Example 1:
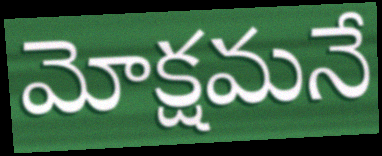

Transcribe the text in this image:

మోక్షమనే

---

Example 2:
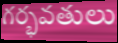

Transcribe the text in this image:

గర్భవతులు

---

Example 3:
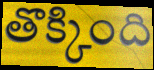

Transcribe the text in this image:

తొక్కింది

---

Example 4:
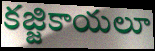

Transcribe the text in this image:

కజ్జికాయలూ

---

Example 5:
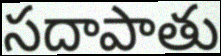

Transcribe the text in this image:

సదాపాతు